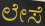
ಲೇಸೆ